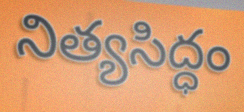
నిత్యసిద్ధం